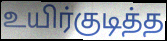
உயிர்குடித்த